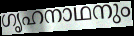
ഗൃഹനാഥനും